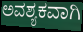
ಅವಶ್ಯಕವಾಗಿ